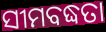
ସୀମବଦ୍ଧତା